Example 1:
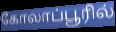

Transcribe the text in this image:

கோலாப்பூரில்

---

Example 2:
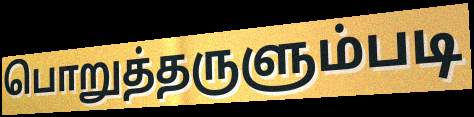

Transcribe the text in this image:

பொறுத்தருளும்படி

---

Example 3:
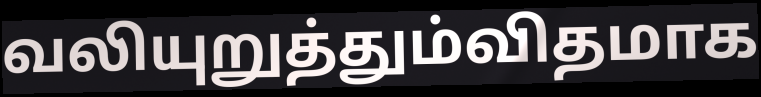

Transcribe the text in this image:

வலியுறுத்தும்விதமாக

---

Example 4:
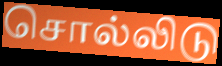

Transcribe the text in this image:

சொல்லிடு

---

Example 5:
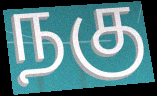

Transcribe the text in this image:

நகு